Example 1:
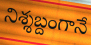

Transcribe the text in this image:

నిశ్శబ్దంగానే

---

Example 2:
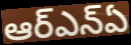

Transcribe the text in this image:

ఆర్ఎన్ఏ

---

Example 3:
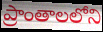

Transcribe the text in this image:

ప్రాంతాలలోని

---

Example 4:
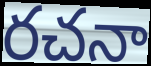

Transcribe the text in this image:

రచనా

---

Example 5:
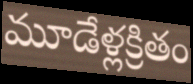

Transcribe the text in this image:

మూడేళ్లక్రితం